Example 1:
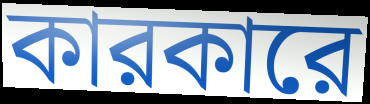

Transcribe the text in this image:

কারকারে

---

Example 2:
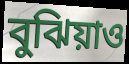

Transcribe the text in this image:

বুঝিয়াও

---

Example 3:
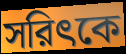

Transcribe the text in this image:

সরিৎকে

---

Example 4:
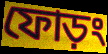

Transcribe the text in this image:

ফোড়ং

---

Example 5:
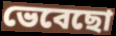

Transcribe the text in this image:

ভেবেছো